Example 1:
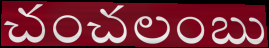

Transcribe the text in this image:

చంచలంబు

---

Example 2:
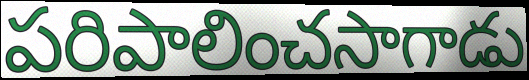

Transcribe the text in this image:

పరిపాలించసాగాడు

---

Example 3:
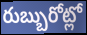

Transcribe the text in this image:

రుబ్బురోట్లో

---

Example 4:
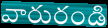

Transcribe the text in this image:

వారురండి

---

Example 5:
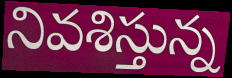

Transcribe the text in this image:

నివశిస్తున్న